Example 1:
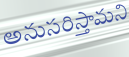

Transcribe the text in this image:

అనుసరిస్తామని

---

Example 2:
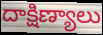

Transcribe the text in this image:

దాక్షిణ్యాలు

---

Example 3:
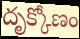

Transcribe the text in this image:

దృక్కోణం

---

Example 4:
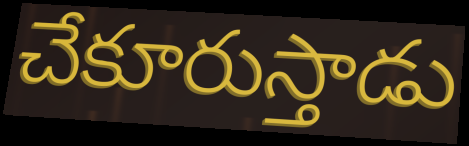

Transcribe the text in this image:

చేకూరుస్తాడు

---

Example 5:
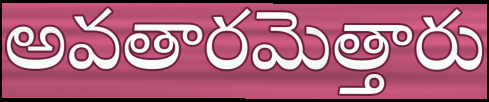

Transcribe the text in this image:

అవతారమెత్తారు